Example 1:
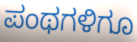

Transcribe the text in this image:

ಪಂಥಗಳಿಗೂ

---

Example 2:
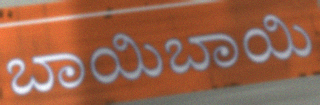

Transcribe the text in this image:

ಬಾಯಿಬಾಯಿ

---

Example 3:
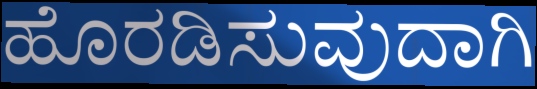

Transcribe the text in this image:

ಹೊರಡಿಸುವುದಾಗಿ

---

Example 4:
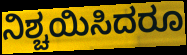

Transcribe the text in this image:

ನಿಶ್ಚಯಿಸಿದರೂ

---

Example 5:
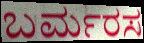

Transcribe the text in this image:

ಬರ್ಮರಸ